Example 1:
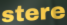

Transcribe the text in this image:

stere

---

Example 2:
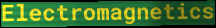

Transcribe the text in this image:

Electromagnetics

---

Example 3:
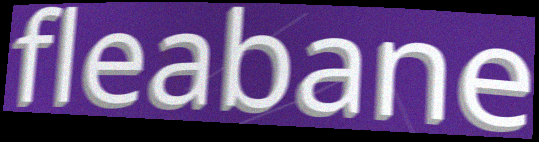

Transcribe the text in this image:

fleabane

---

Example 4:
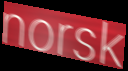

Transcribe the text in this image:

norsk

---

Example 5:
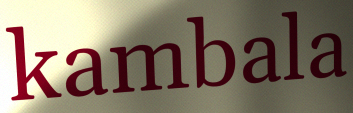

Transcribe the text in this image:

kambala